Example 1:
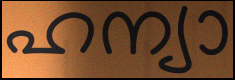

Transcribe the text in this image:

ഹന്യാ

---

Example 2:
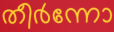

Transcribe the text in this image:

തീർന്നോ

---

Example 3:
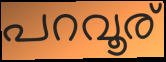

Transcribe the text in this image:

പറവൂര്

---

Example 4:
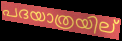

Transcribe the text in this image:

പദയാത്രയില്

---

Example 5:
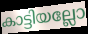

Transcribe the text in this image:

കാട്ടിയല്ലോ